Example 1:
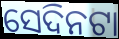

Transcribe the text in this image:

ସେଦିନଟା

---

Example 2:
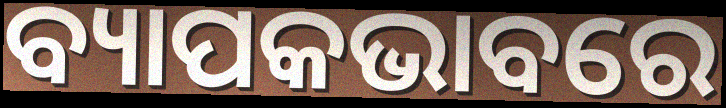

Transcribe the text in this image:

ବ୍ୟାପକଭାବରେ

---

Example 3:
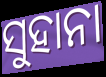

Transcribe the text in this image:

ସୁହାନା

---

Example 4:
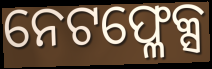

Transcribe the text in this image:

ନେଟଫ୍ଳେକ୍ସ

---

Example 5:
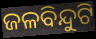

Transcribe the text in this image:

ଜଳବିନ୍ଦୁଟି